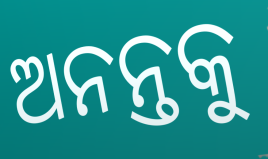
ଅନନ୍ତକୁ